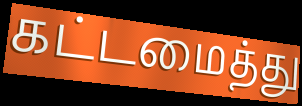
கட்டமைத்து